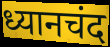
ध्यानचंद